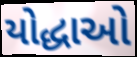
યોદ્ધાઓ